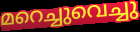
മറെച്ചുവെച്ചു